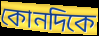
কোনদিকে